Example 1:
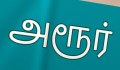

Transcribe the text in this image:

அரூர்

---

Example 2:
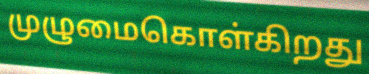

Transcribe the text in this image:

முழுமைகொள்கிறது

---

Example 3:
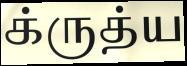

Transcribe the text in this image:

க்ருத்ய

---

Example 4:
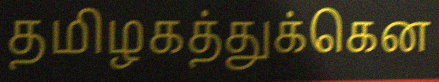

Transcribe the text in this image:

தமிழகத்துக்கென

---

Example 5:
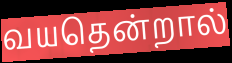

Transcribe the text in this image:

வயதென்றால்